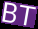
BT